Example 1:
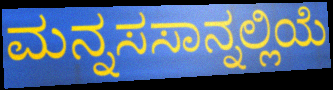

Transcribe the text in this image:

ಮನ್ನಸಸಾನ್ನಲ್ಲಿಯೆ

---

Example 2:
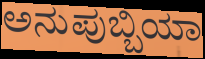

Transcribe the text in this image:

ಅನುಪುಬ್ಬಿಯಾ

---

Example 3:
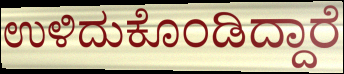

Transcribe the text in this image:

ಉಳಿದುಕೊಂಡಿದ್ದಾರೆ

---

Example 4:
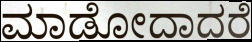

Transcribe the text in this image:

ಮಾಡೋದಾದರೆ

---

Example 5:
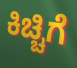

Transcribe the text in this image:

ಕಿಚ್ಚಿಗೆ